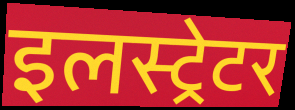
इलस्ट्रेटर